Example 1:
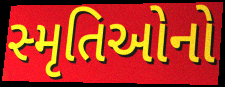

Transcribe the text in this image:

સ્મૃતિઓનો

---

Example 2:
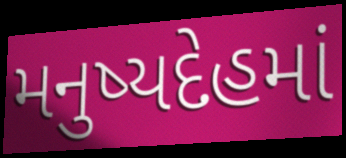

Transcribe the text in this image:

મનુષ્યદેહમાં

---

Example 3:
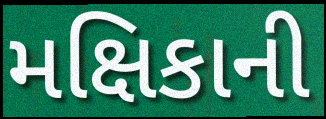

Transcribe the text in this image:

મક્ષિકાની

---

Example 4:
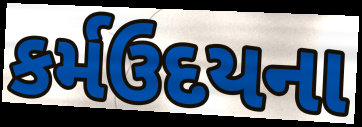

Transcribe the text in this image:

કર્મઉદયના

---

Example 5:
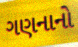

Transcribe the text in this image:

ગણનાનો